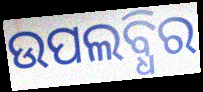
ଉପଲବ୍ଧିର